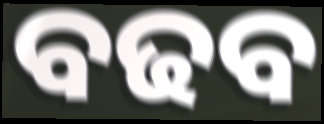
ବଢବ